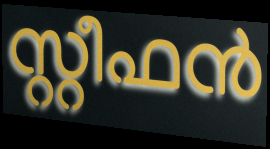
സ്റ്റീഫൻ